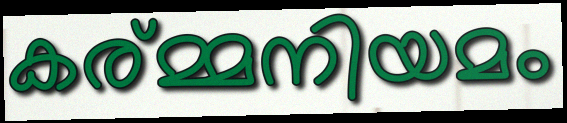
കര്മ്മനിയമം